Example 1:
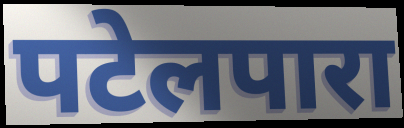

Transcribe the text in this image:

पटेलपारा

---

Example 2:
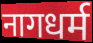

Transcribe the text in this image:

नागधर्म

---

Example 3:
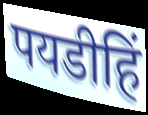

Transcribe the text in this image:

पयडीहिं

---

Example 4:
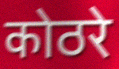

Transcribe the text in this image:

कोठरे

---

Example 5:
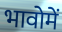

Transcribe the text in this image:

भावोमें